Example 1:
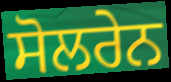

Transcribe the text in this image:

ਸੋਲਰੇਨ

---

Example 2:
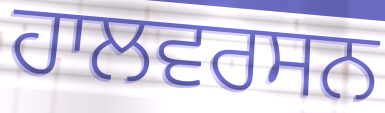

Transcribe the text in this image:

ਹਾਲਵਰਸਨ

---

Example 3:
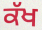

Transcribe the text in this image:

ਕੱਖ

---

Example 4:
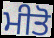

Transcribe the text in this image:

ਮੀਤੋ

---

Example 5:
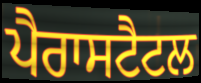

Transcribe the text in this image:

ਪੈਰਾਸਟੈਟਲ